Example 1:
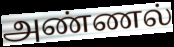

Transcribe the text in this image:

அண்ணல்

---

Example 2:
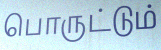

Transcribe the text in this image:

பொருட்டும்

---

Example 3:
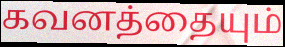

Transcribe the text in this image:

கவனத்தையும்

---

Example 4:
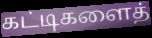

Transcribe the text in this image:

கட்டிகளைத்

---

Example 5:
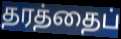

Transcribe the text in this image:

தரத்தைப்